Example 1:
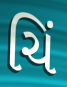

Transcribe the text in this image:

ચિં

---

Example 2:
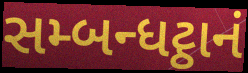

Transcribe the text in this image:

સમ્બન્ધટ્ઠાનં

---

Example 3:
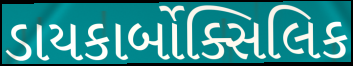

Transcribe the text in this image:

ડાયકાર્બોક્સિલિક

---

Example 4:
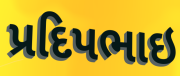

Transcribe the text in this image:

પ્રદિપભાઇ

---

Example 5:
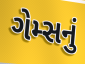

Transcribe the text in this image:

ગેમ્સનું